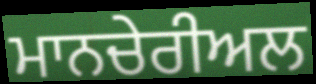
ਮਾਨਚੇਰੀਅਲ